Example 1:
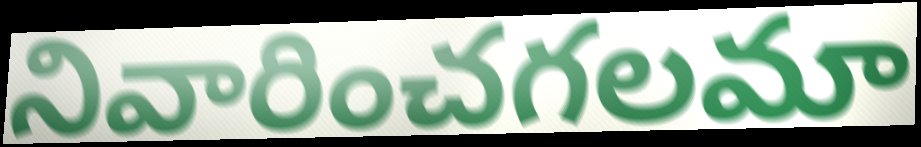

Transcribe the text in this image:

నివారించగలమా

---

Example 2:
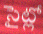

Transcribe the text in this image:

సైట్లో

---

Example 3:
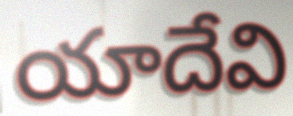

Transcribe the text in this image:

యాదేవి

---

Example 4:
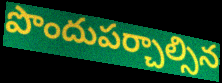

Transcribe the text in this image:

పొందుపర్చాల్సిన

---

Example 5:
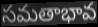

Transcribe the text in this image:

సమతాభావ